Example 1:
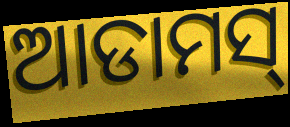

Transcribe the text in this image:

ଆଡାମସ୍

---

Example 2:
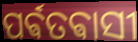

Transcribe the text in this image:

ପର୍ଵତଵାସୀ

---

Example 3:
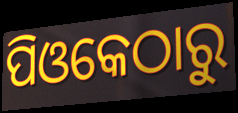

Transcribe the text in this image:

ପିଓକେଠାରୁ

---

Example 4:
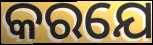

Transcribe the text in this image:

କରଯେ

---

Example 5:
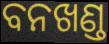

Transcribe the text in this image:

ବନଖଣ୍ଡ